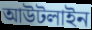
আউটলাইন